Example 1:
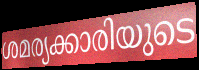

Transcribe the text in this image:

ശമര്യക്കാരിയുടെ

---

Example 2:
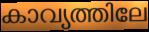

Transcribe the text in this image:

കാവ്യത്തിലേ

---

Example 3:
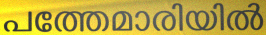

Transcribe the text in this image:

പത്തേമാരിയിൽ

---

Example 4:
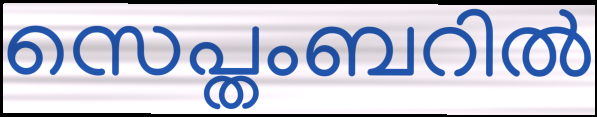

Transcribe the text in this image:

സെപ്തംബറിൽ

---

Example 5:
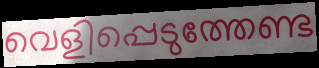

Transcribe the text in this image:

വെളിപ്പെടുത്തേണ്ട